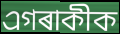
এগৰাকীক